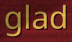
glad